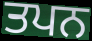
ਤਪਨ